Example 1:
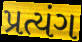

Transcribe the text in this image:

પ્રત્યંગ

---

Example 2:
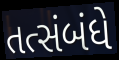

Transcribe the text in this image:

તત્સંબંધે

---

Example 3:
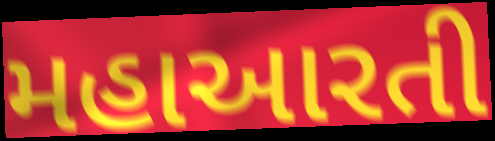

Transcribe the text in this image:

મહાઆરતી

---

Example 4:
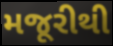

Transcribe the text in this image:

મજૂરીથી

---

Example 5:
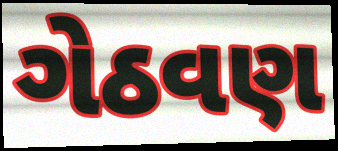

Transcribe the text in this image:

ગેઠવણ